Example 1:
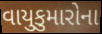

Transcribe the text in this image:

વાયુકુમારોના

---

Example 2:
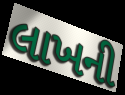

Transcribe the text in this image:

લાખની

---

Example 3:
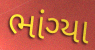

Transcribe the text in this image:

ભાંગ્યા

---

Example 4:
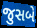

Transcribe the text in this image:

જુસબે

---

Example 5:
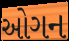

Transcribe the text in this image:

ઓગન